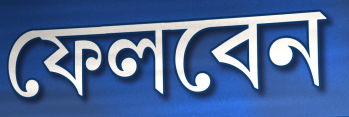
ফেলবেন